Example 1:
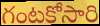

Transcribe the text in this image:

గంటకోసారి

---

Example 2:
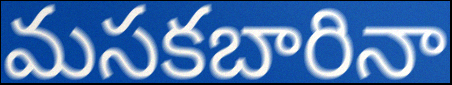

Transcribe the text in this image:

మసకబారినా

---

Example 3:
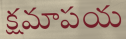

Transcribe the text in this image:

క్షమాపయ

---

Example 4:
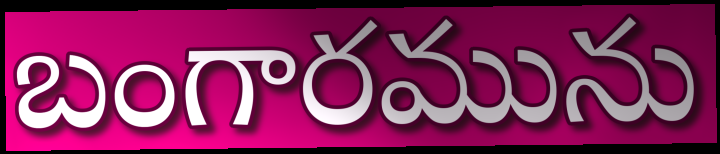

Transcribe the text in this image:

బంగారమును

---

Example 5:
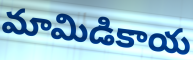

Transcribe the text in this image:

మామిడికాయ